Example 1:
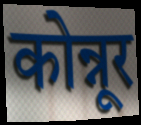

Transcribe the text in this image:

कोन्नूर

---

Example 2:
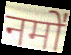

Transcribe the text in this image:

नमो॑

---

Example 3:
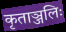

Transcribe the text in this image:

कृताञ्जलिः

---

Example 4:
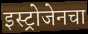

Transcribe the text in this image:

इस्ट्रोजेनचा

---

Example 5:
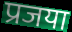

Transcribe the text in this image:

प्रजया